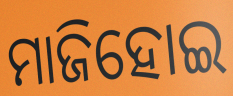
ମାଜିହୋଇ